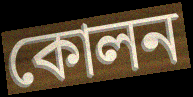
কোলন